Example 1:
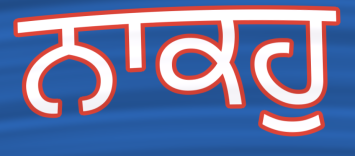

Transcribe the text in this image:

ਨਾਕਹੁ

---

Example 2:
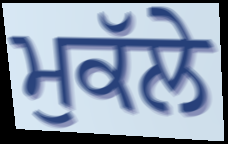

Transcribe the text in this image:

ਮੁਕੱਲੇ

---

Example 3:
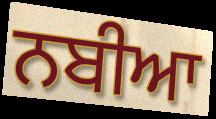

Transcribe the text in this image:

ਨਬੀਆ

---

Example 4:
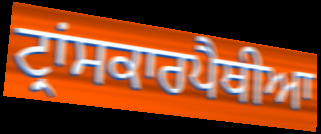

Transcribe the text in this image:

ਟ੍ਰਾਂਸਕਾਰਪੈਥੀਆ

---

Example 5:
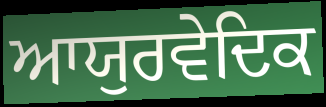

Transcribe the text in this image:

ਆਯੁਰਵੇਦਿਕ